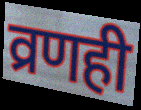
व्रणही